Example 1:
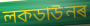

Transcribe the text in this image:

লকডাউনৰ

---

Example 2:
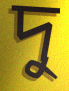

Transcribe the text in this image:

দু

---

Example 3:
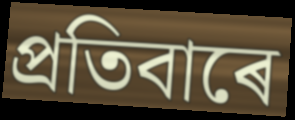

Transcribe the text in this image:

প্ৰতিবাৰে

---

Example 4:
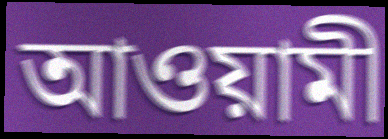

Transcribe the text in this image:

আওয়ামী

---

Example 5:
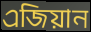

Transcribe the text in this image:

এজিয়ান